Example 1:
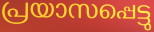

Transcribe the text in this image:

പ്രയാസപ്പെട്ടു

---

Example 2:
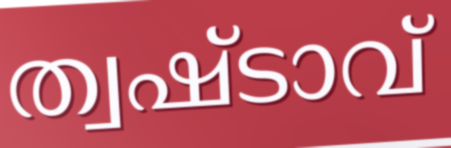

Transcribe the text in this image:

ത്വഷ്ടാവ്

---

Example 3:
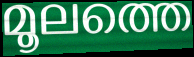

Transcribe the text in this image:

മൂലത്തെ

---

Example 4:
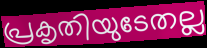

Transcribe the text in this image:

പ്രകൃതിയുടേതല്ല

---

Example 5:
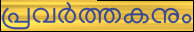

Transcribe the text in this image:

പ്രവർത്തകനും